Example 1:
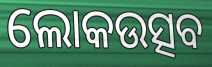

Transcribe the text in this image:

ଲୋକଉତ୍ସବ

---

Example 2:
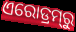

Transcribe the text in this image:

ଏରୋଡ୍ରମ୍‍ରୁ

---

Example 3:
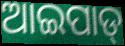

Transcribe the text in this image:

ଆଇପାଡ୍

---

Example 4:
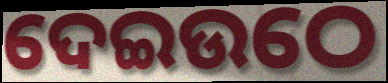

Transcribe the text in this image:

ଦେଇଉଠେ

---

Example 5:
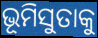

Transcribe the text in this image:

ଭୂମିସୁତାକୁ